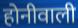
होनीवाली